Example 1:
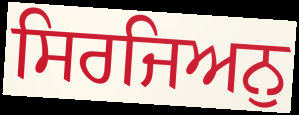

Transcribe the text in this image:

ਸਿਰਜਿਅਨੁ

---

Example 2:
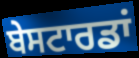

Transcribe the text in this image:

ਬੇਸਟਾਰਡਾਂ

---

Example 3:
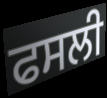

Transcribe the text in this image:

ਫਸਲੀ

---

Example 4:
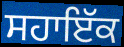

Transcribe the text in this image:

ਸਹਾਇੱਕ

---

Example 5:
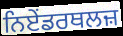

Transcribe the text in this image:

ਨਿਏਂਡਰਥਲਜ਼